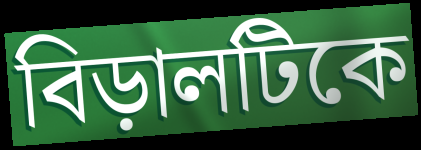
বিড়ালটিকে